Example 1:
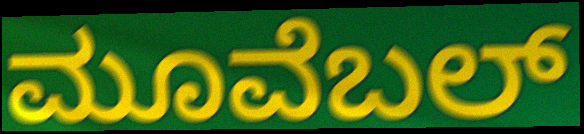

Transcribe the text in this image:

ಮೂವೆಬಲ್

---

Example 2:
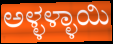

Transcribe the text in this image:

ಅಳ್ಳಳ್ಳಾಯಿ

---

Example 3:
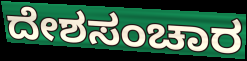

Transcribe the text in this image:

ದೇಶಸಂಚಾರ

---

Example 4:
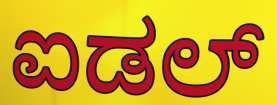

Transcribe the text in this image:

ಐಡಲ್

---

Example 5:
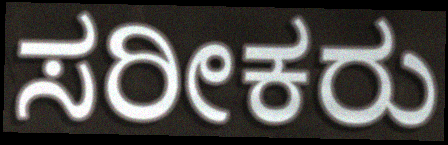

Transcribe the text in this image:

ಸರೀಕರು